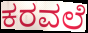
ಕರವಲೆ